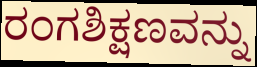
ರಂಗಶಿಕ್ಷಣವನ್ನು